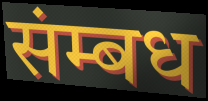
संम्बध